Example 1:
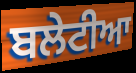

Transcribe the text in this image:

ਬਲੇਟੀਆ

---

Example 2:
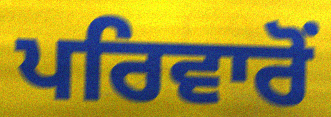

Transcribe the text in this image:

ਪਰਿਵਾਰੋਂ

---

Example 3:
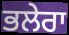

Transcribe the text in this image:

ਭਲੇਰਾ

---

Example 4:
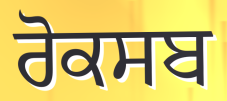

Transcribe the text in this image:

ਰੋਕਸਬ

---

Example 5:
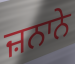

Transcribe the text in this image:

ਜ਼ਨਾਨੇ